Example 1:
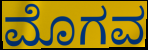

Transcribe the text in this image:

ಮೊಗವ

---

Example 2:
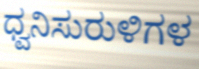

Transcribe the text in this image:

ಧ್ವನಿಸುರುಳಿಗಳ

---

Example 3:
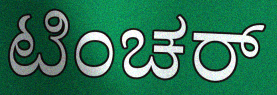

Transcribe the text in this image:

ಟಿಂಚರ್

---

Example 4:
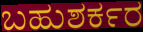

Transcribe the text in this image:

ಬಹುಶರ್ಕರ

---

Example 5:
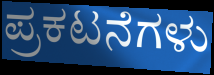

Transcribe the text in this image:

ಪ್ರಕಟನೆಗಳು